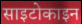
साइटोकाइन